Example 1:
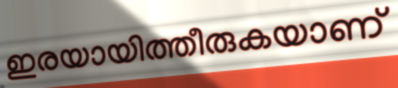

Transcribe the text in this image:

ഇരയായിത്തീരുകയാണ്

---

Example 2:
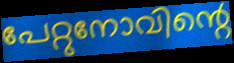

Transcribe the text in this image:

പേറ്റുനോവിന്റെ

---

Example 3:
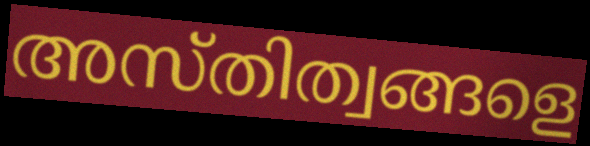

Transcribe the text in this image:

അസ്തിത്വങ്ങളെ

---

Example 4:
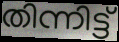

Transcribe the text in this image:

തിന്നിട്ട്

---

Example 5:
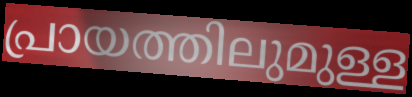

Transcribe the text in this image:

പ്രായത്തിലുമുള്ള